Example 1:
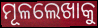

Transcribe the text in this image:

ମୂଳଲେଖାକୁ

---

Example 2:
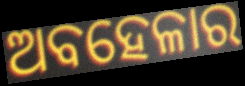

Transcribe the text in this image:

ଅବହେଳାର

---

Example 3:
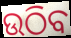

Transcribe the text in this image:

ଉଠିବ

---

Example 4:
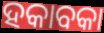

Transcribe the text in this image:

ହକାବକା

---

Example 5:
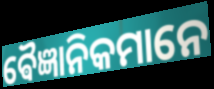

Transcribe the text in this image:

ଵୈଜ୍ଞାନିକମାନେ